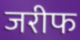
जरीफ